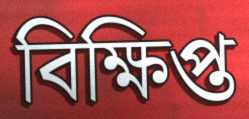
বিক্ষিপ্ত